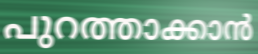
പുറത്താക്കാൻ